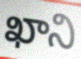
ఖాని